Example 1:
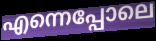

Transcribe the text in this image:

എന്നെപ്പോലെ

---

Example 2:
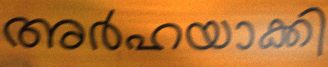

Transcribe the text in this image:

അർഹയാക്കി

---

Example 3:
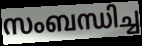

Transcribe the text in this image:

സംബന്ധിച്ച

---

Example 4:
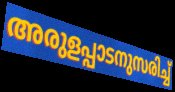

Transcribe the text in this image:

അരുളപ്പാടനുസരിച്ച്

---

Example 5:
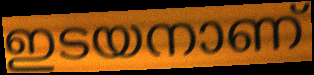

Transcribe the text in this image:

ഇടയനാണ്